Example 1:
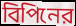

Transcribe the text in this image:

বিপিনের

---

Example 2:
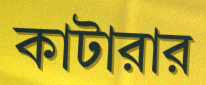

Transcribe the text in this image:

কাটারার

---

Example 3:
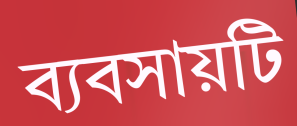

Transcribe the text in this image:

ব্যবসায়টি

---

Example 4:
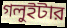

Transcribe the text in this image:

গলুইটার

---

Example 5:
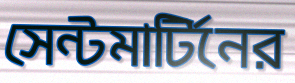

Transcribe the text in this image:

সেন্টমার্টিনের